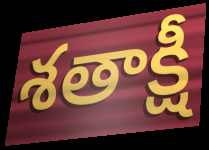
శతాక్షీ